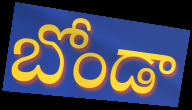
బోండా